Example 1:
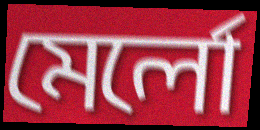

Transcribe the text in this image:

মের্লো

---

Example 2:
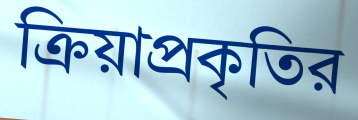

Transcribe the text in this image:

ক্রিয়াপ্রকৃতির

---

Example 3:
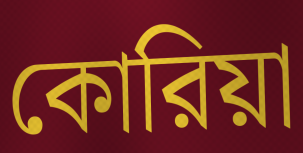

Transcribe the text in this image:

কোরিয়া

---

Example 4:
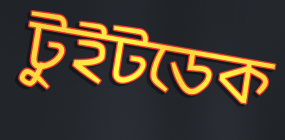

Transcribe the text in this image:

টুইটডেক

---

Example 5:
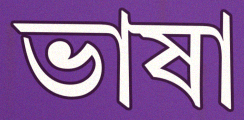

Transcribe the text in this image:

ভাষা